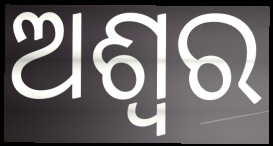
ଅଶ୍ୱର